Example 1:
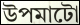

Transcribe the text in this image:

উপমাটো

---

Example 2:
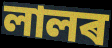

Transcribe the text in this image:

লালৰ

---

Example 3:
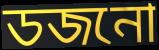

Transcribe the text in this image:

ডজনো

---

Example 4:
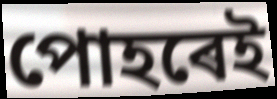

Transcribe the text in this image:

পোহৰেই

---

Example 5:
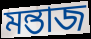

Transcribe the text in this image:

মন্তাজ